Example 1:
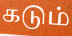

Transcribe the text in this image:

கடும்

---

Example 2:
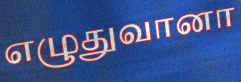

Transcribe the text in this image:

எழுதுவானா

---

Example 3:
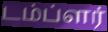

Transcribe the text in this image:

டம்ப்ளர்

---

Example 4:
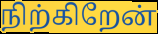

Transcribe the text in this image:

நிற்கிறேன்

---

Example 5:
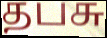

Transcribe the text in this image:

தபசு